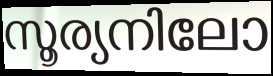
സൂര്യനിലോ